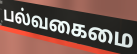
பல்வகைமை